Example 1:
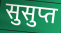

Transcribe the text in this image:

सुसुप्त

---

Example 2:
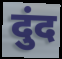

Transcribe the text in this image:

दुंद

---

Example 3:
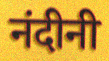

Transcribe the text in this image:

नंदीनी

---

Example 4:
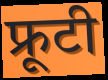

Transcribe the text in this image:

फ्रूटी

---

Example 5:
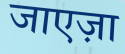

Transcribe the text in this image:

जाएज़ा